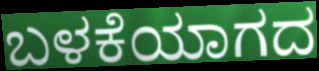
ಬಳಕೆಯಾಗದ